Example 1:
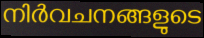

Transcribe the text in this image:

നിർവചനങ്ങളുടെ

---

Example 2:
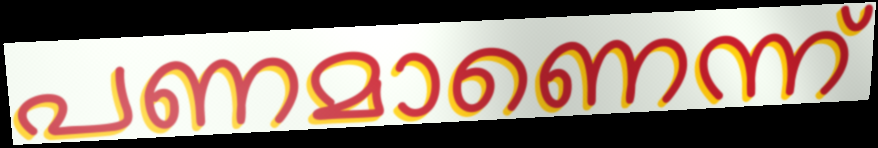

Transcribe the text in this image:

പണമാണെന്ന്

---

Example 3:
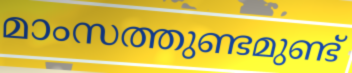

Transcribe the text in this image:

മാംസത്തുണ്ടമുണ്ട്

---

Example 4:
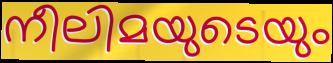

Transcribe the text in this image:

നീലിമയുടെയും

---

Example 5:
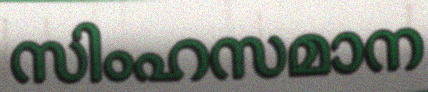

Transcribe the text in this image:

സിംഹസമാന